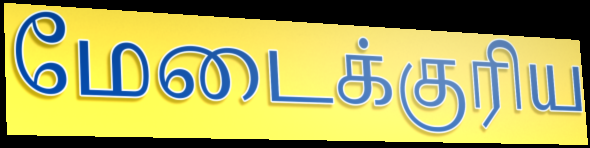
மேடைக்குரிய